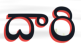
దారి